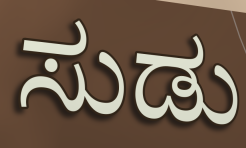
ಸುಡು